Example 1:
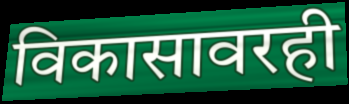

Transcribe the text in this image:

विकासावरही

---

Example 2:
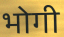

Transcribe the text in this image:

भोगी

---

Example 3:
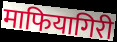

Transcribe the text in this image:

माफियागिरी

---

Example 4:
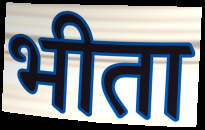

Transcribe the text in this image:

भीता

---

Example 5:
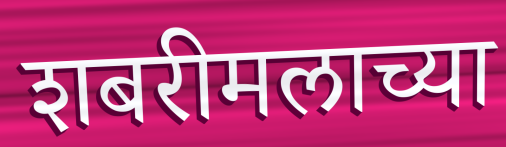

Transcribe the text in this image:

शबरीमलाच्या